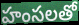
హంసలతో